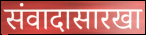
संवादासारखा